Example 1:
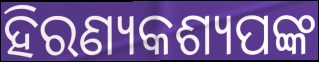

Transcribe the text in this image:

ହିରଣ୍ୟକଶ୍ୟପଙ୍କ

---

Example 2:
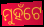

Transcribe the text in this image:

ମୁହଁଟେ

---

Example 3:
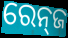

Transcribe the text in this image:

ରେନ୍‍ଜ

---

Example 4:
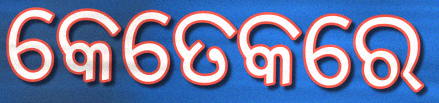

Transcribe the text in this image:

କେତେକରେ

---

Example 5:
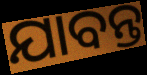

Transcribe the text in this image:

ଯାବନ୍ତ